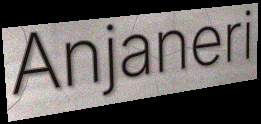
Anjaneri